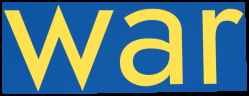
war